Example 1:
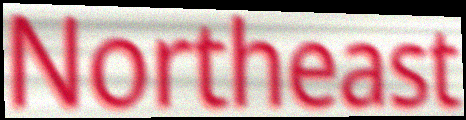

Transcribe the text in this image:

Northeast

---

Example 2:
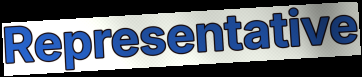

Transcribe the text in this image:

Representative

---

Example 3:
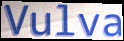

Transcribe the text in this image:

Vulva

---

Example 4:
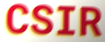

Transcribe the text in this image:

CSIR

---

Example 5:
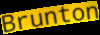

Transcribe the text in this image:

Brunton